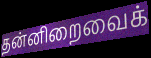
தன்னிறைவைக்